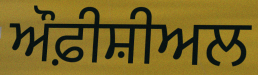
ਔਫ਼ੀਸ਼ੀਅਲ